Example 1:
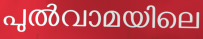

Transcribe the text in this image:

പുൽവാമയിലെ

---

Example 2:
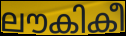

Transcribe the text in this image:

ലൗകികീ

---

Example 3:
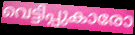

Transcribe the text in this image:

വെട്ടിപ്പുകാരോ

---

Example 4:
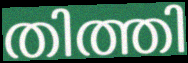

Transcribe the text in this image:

തിത്തി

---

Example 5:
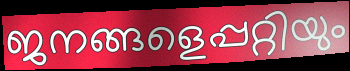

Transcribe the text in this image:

ജനങ്ങളെപ്പറ്റിയും